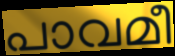
പാവമീ